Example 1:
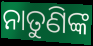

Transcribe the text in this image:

ନାତୁଣିଙ୍କ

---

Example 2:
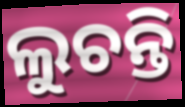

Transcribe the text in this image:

ଲୁଚନ୍ତି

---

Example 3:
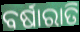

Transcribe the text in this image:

ବର୍ଷାରାତି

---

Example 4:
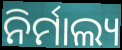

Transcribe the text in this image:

ନିର୍ମାଲ୍ୟ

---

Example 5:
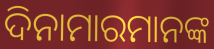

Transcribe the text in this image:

ଦିନାମାରମାନଙ୍କ